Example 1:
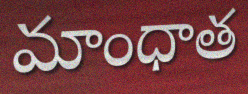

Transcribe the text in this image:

మాంధాత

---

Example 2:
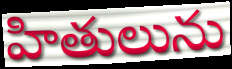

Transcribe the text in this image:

హితులును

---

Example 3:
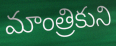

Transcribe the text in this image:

మాంత్రికుని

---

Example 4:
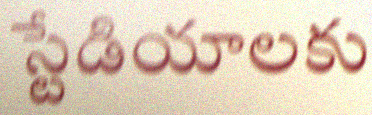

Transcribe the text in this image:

స్టేడియాలకు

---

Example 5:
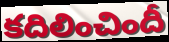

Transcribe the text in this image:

కదిలించిందీ